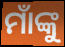
ମାଁଙ୍କୁ